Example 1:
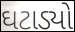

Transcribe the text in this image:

ઘટાડ્યો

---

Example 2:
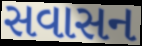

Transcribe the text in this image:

સવાસન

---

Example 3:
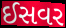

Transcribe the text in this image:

ઈસવર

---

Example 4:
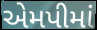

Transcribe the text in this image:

એમપીમાં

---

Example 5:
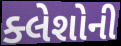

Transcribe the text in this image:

ક્લેશોની